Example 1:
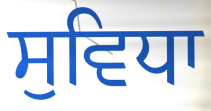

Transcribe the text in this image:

ਸੁਵਿਧਾ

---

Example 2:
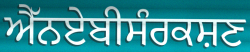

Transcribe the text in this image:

ਐੱਨਏਬੀਸੰਰਕਸ਼ਣ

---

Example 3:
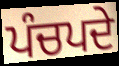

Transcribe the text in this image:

ਪੰਚਪਦੇ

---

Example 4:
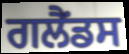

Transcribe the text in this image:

ਗਲੈਂਡਸ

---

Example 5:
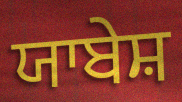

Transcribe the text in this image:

ਯਾਬੇਸ਼